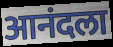
आनंदला